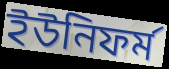
ইউনিফৰ্ম